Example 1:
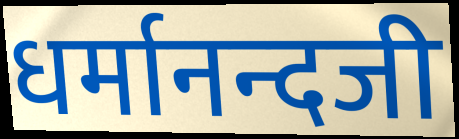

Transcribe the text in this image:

धर्मानन्दजी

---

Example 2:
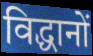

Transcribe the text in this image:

विद्धानों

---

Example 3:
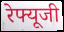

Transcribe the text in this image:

रेफ्यूजी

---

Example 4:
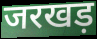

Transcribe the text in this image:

जरखड़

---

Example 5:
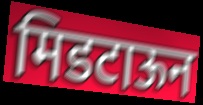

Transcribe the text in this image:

मिडटाऊन